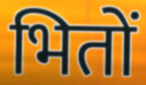
भितों